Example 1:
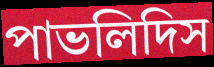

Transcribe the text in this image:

পাভলিদিস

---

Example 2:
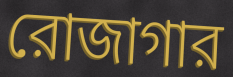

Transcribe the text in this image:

রোজাগার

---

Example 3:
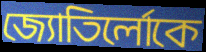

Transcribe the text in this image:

জ্যোতির্লোকে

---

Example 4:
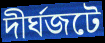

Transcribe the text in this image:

দীর্ঘজটে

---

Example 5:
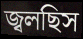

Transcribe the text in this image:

জ্বলছিস